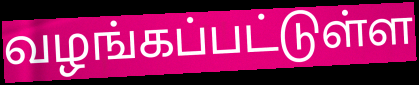
வழங்கப்பட்டுள்ள